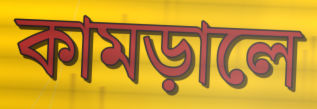
কামড়ালে